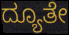
ದ್ಯೂತೇ